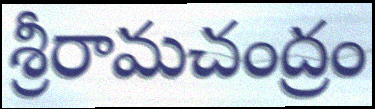
శ్రీరామచంద్రం